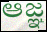
ఆజ్ఞ